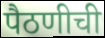
पैठणीची